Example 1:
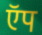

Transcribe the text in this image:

ऍप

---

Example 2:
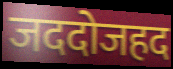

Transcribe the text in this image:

जददोजहद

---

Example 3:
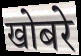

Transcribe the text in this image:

खोबरे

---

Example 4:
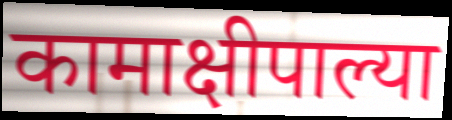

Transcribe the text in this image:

कामाक्षीपाल्या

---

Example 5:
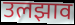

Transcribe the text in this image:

उलझाव